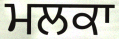
ਮਲਕਾ